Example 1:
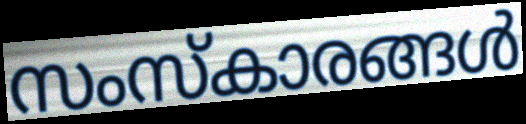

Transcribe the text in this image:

സംസ്കാരങ്ങൾ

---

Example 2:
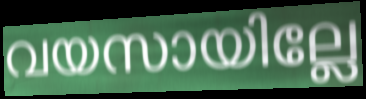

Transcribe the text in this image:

വയസായില്ലേ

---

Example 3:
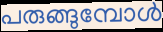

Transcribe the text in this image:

പരുങ്ങുമ്പോൾ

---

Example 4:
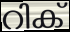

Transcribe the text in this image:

റിക്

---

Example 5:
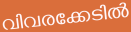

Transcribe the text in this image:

വിവരക്കേടിൽ